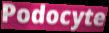
Podocyte